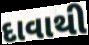
દાવાથી